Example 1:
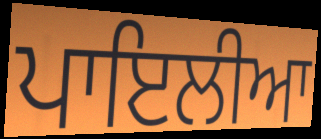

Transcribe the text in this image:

ਪਾਇਲੀਆ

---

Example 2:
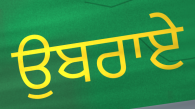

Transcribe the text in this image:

ਉਬਰਾਏ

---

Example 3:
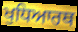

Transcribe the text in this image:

ਖੁਧਿਆਰਥ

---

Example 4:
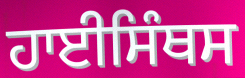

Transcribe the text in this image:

ਹਾਈਸਿੰਥਸ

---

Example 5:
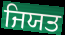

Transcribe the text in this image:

ਜਿਯਤ